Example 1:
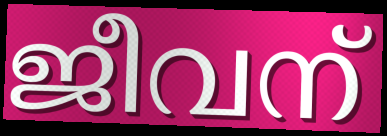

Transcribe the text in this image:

ജീവന്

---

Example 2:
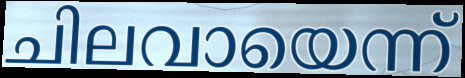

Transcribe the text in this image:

ചിലവായെന്ന്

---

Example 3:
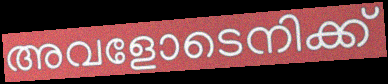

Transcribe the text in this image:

അവളോടെനിക്ക്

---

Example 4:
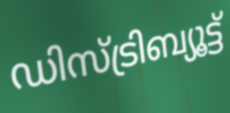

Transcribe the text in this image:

ഡിസ്ട്രിബ്യൂട്ട്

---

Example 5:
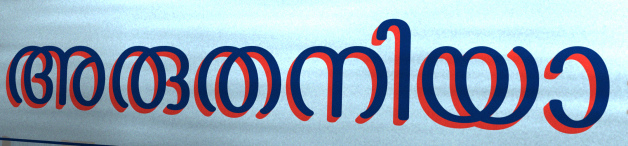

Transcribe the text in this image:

അരുതനിയാ